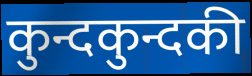
कुन्दकुन्दकी